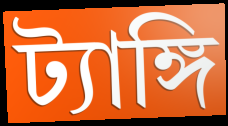
ট্যাঙ্গি